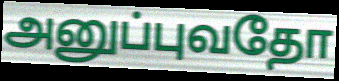
அனுப்புவதோ